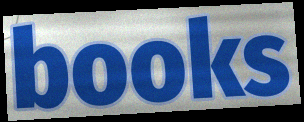
books